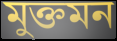
মুক্তমন